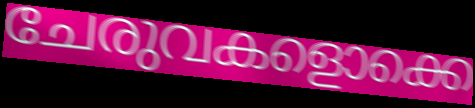
ചേരുവകളൊക്കെ